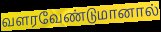
வளரவேண்டுமானால்